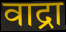
वाद्रा